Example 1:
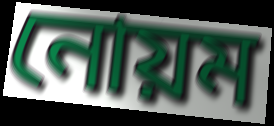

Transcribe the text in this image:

নোয়ম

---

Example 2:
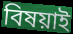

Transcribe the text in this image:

বিষয়াই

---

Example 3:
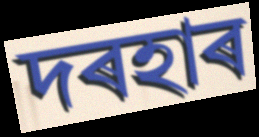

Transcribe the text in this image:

দৰহাৰ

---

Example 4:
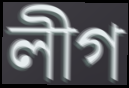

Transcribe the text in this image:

লীগ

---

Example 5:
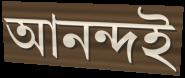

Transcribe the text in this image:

আনন্দই